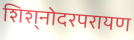
शिश्नोदरपरायण